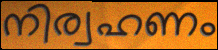
നിര്വഹണം